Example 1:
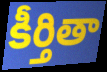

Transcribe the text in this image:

కీర్తితా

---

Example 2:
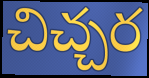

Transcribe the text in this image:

చిచ్చర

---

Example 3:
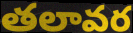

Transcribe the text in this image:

తలావర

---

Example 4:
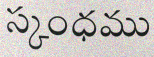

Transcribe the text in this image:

స్కంధము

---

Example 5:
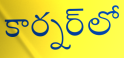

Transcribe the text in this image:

కార్నర్‌లో